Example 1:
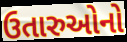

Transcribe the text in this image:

ઉતારુઓનો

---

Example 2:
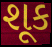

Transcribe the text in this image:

શૂક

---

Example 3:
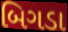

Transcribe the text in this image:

બિગડા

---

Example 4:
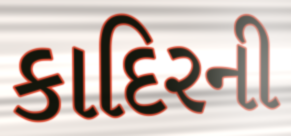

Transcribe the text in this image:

કાદિરની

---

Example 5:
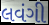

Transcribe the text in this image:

લવંગી